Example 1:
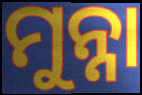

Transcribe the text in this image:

ମୁନ୍ନା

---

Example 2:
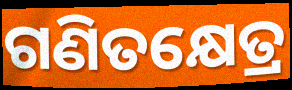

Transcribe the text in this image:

ଗଣିତକ୍ଷେତ୍ର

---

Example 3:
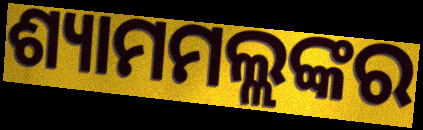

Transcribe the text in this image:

ଶ୍ୟାମମଲ୍ଲଙ୍କର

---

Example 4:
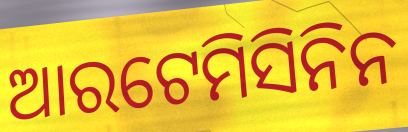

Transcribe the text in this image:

ଆରଟେମିସିନିନ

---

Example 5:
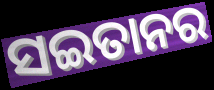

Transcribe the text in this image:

ସଇତାନର